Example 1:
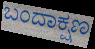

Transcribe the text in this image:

ಬಂದಾಕ್ಷಣ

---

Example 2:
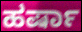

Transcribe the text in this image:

ಹರ್ಷಾ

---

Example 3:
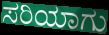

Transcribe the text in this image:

ಸರಿಯಾಗು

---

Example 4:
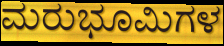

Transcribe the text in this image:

ಮರುಭೂಮಿಗಳ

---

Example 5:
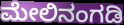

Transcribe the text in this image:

ಮೇಲಿನಂಗಡಿ